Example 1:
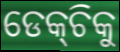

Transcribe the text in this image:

ଡେକ୍‌ଚିକୁ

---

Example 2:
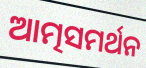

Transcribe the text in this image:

ଆତ୍ମସମର୍ଥନ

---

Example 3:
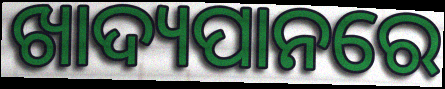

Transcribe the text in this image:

ଖାଦ୍ୟପାନରେ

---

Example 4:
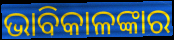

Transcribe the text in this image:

ଭାବିକାଳଙ୍କାର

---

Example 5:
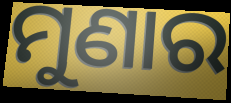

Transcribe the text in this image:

ମୁଣାର